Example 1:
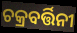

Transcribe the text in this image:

ଚକ୍ରବର୍ତ୍ତିନୀ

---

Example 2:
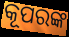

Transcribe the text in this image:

କୂପରଙ୍କ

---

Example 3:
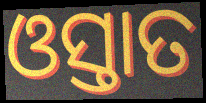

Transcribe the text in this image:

ଓସ୍ତାତ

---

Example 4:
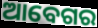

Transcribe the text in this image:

ଆବେଗର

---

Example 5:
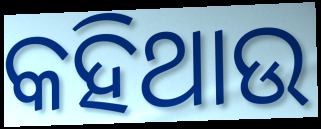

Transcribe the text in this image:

କହିଥାଉ